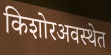
किशोरअवस्थेत